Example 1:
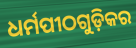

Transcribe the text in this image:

ଧର୍ମପୀଠଗୁଡ଼ିକର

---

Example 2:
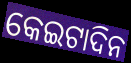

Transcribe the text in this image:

କେଇଟାଦିନ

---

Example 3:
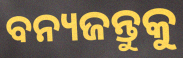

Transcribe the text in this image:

ବନ୍ୟଜନ୍ତୁକୁ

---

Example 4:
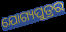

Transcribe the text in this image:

ଯୋଗ୍ୟପୁତ୍ରର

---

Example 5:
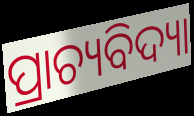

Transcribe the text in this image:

ପ୍ରାଚ୍ୟବିଦ୍ୟା